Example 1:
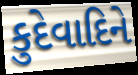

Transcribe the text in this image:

કુદેવાદિને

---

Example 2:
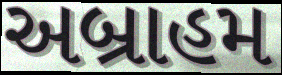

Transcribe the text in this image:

અબ્રાહમ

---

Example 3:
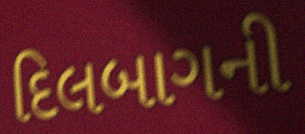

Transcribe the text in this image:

દિલબાગની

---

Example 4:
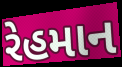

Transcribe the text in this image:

રેહમાન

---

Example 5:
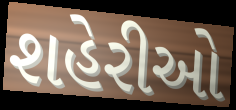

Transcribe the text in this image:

શહેરીઓ